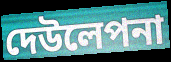
দেউলেপনা